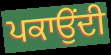
ਪਕਾਉਂਦੀ